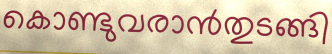
കൊണ്ടുവരാൻതുടങ്ങി